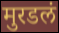
मुरडलं